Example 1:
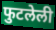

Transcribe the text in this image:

फुटलेली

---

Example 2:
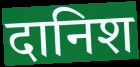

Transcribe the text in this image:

दानिश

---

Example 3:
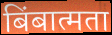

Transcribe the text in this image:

बिंबात्मता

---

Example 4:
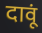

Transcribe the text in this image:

दावूं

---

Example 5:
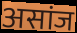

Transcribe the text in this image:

असांज